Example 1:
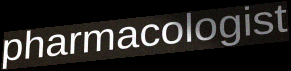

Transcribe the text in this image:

pharmacologist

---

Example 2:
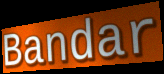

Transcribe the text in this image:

Bandar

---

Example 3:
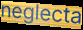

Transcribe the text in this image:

neglecta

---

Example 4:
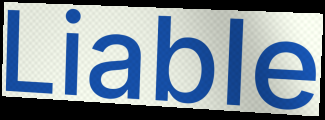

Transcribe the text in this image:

Liable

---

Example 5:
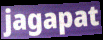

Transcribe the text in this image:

jagapat